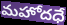
మహోదధే